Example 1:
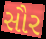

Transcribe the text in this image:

સૌર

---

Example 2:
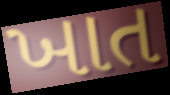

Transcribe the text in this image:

ખાત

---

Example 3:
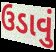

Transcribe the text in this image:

ઉડાવું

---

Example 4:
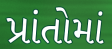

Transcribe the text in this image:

પ્રાંતોમાં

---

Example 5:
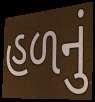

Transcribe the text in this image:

હળનું